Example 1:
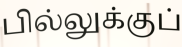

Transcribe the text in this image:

பில்லுக்குப்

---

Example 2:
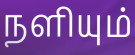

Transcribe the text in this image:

நளியும்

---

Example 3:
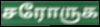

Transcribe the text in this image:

சரோருக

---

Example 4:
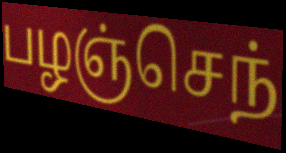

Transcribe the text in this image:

பழஞ்செந்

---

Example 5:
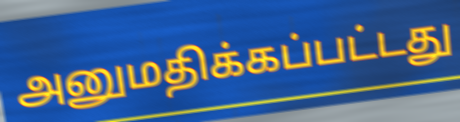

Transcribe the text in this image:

அனுமதிக்கப்பட்டது